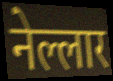
नेल्लार